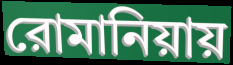
রোমানিয়ায়